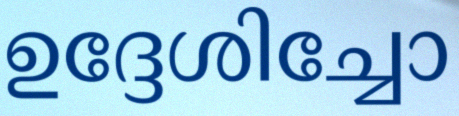
ഉദ്ദേശിച്ചോ